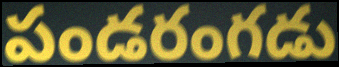
పండరంగడు